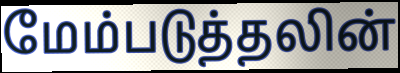
மேம்படுத்தலின்